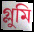
গ্লুমি